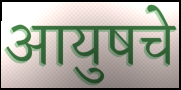
आयुषचे